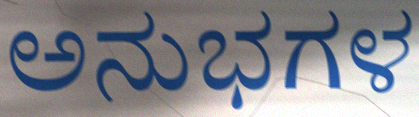
ಅನುಭಗಳ